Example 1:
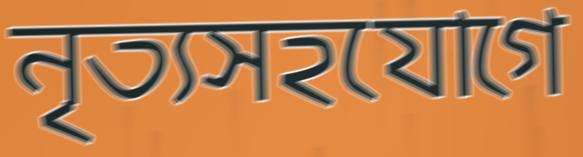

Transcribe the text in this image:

নৃত্যসহযোগে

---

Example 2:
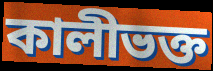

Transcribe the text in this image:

কালীভক্ত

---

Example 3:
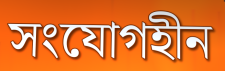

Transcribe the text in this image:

সংযোগহীন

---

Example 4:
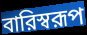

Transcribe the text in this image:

বারিস্বরূপ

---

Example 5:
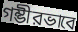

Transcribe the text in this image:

গম্ভীরভাবে